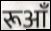
रूआँ